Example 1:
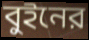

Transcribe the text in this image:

বুইনের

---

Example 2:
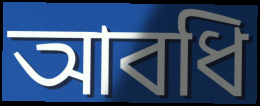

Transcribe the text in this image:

আবধি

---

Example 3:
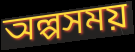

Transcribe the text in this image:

অল্পসময়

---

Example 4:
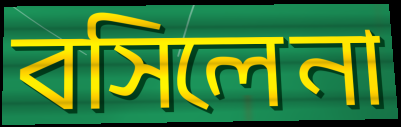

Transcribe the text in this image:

বসিলেনা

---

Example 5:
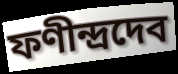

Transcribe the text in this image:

ফণীন্দ্রদেব